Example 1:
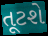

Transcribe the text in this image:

તૂટશે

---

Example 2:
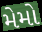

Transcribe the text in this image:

મેમો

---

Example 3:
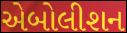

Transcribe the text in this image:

એબોલીશન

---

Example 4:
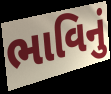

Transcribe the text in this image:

ભાવિનું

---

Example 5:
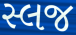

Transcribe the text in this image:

સ્લજ